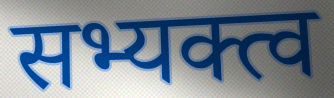
सभ्यक्त्व